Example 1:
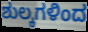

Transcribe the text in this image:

ಶುಲ್ಕಗಳಿಂದ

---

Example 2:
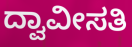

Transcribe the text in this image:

ದ್ವಾವೀಸತಿ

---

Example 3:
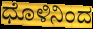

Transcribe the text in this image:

ಧೊಳಿನಿಂದ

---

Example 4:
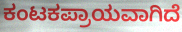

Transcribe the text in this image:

ಕಂಟಕಪ್ರಾಯವಾಗಿದೆ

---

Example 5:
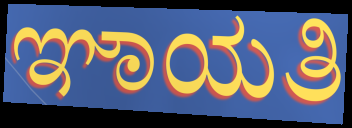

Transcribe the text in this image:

ಞಾಯತಿ